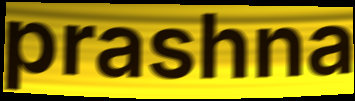
prashna